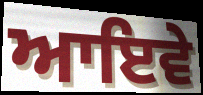
ਆਇਵੇ